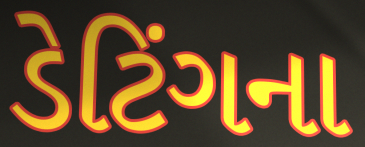
ડેટિંગના